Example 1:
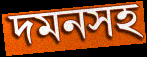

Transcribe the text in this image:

দমনসহ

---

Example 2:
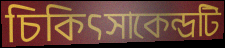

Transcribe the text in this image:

চিকিৎসাকেন্দ্রটি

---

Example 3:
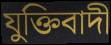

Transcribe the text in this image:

যুক্তিবাদী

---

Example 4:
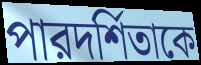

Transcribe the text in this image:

পারদর্শিতাকে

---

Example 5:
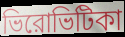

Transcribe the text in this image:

ভিরোভিটিকা